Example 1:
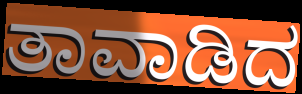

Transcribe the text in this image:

ತಾವಾಡಿದ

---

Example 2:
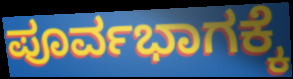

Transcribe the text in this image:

ಪೂರ್ವಭಾಗಕ್ಕೆ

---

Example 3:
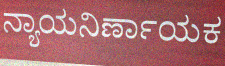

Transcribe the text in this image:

ನ್ಯಾಯನಿರ್ಣಾಯಕ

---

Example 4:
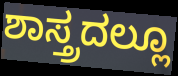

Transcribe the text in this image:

ಶಾಸ್ತ್ರದಲ್ಲೂ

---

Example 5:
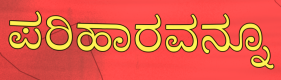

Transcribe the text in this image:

ಪರಿಹಾರವನ್ನೂ